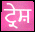
ਟ੍ਰੇਸ਼